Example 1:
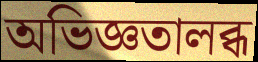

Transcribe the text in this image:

অভিজ্ঞতালব্ধ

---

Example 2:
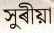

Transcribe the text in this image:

সুৰীয়া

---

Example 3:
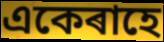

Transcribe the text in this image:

একেৰাহে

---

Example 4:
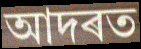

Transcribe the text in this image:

আদৰত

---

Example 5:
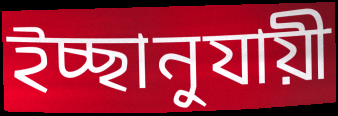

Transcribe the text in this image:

ইচ্ছানুযায়ী